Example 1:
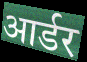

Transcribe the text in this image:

आर्डर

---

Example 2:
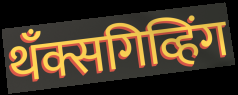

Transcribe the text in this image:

थॅँक्सगिव्हिंग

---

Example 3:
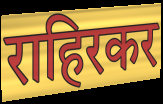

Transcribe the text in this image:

राहिरकर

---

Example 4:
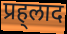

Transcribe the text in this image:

प्रह्‌लाद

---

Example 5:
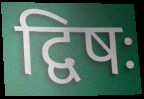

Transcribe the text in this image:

द्विषः